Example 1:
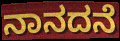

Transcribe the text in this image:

ನಾನದನೆ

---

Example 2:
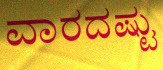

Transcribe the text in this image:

ವಾರದಷ್ಟು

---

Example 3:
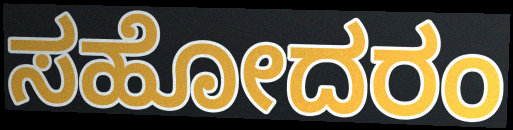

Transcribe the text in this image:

ಸಹೋದರಂ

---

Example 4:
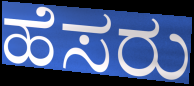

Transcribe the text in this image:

ಹೆಸರು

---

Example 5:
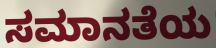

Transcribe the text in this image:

ಸಮಾನತೆಯ